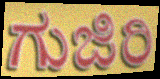
ಗುಜಿರಿ